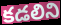
కడలిని